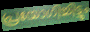
പ്രയോഗിച്ചിട്ടും